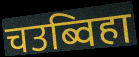
चउब्विहा